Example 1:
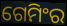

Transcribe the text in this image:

ଗେମିଂର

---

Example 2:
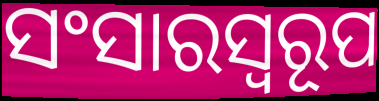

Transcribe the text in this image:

ସଂସାରସ୍ବରୂପ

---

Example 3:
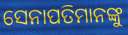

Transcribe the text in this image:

ସେନାପତିମାନଙ୍କୁ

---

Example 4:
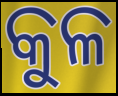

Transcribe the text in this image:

କୁଳ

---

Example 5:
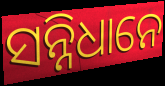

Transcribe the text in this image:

ସନ୍ନିଧାନେ